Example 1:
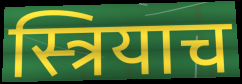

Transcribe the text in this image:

स्त्रियाच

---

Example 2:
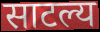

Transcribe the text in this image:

साटल्य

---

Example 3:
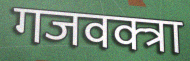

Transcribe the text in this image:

गजवक्त्रा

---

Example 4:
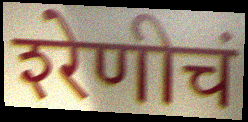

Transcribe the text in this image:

श्रेणीचं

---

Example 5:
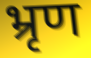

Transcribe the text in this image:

भ्रृण